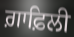
ਗ਼ਾਫ਼ਿਲੀ